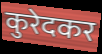
कुरेदकर